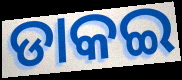
ଡାକଇ